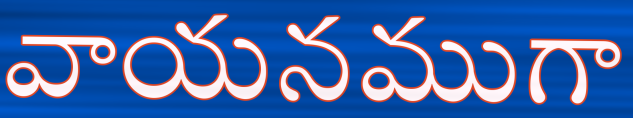
వాయనముగా